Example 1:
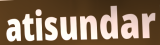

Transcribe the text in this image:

atisundar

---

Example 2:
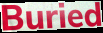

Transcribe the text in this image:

Buried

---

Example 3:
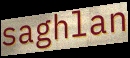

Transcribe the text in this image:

saghlan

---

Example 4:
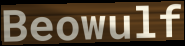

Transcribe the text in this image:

Beowulf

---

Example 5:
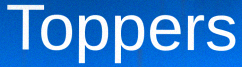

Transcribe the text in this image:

Toppers